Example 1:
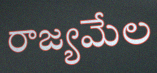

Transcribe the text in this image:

రాజ్యమేల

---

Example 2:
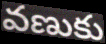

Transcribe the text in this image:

వణుకు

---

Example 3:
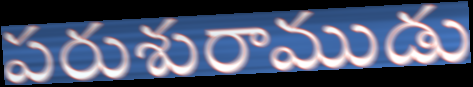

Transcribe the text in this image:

పరుశురాముడు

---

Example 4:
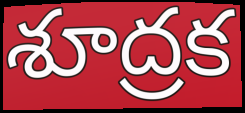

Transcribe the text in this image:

శూద్రక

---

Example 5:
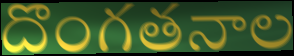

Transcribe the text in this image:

దొంగతనాల